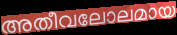
അതീവലോലമായ